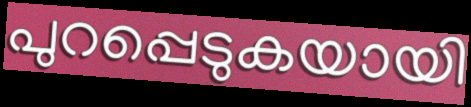
പുറപ്പെടുകയായി